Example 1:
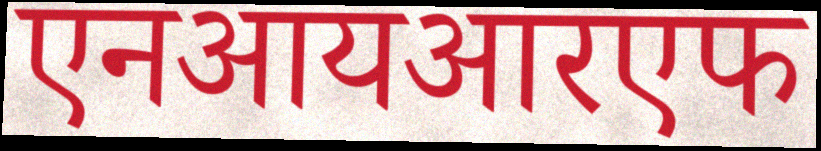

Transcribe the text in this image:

एनआयआरएफ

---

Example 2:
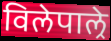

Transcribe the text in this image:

विलेपाल्रे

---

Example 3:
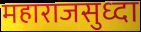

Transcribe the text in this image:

महाराजसुध्दा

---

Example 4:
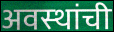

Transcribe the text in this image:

अवस्थांची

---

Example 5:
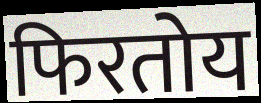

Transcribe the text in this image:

फिरतोय